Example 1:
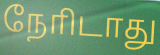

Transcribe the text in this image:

நேரிடாது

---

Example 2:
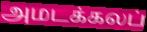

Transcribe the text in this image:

அமடக்கலப்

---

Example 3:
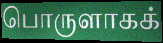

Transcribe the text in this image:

பொருளாகக்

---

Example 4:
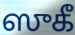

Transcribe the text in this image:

ஸுகீ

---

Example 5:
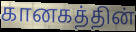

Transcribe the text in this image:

கானகத்தின்